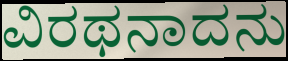
ವಿರಥನಾದನು